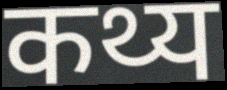
कथ्य